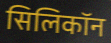
सिलिकॉन